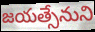
జయత్సేనుని